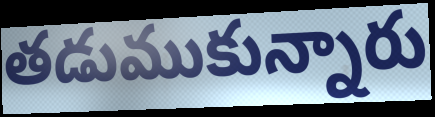
తడుముకున్నారు